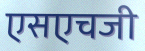
एसएचजी